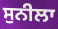
ਸੁਨੀਲਾ